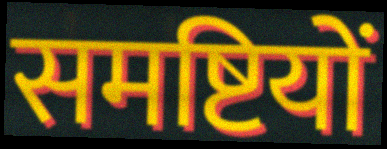
समष्टियों